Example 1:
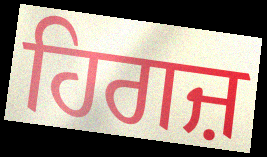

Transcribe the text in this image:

ਹਿਗਜ਼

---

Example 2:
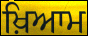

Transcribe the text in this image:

ਖ਼ਿਆਮ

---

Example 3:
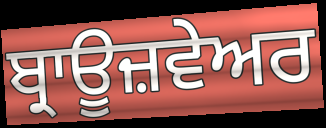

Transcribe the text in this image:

ਬ੍ਰਾਊਜ਼ਵੇਅਰ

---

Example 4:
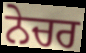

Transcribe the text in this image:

ਨੇਚਰ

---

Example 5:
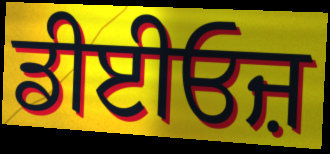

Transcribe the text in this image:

ਡੀਈਓਜ਼